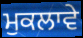
ਮੁਕਲਾਵੇ